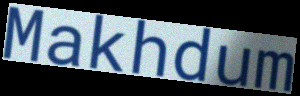
Makhdum